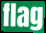
flag